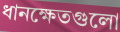
ধানক্ষেতগুলো